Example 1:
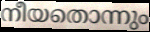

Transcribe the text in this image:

നീയതൊന്നും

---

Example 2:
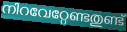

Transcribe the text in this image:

നിറവേറ്റേണ്ടതുണ്ട്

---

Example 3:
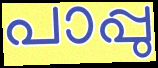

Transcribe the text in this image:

പാപ്പു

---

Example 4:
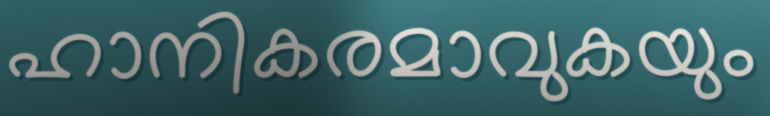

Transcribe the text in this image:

ഹാനികരമാവുകയും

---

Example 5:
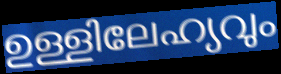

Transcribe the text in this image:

ഉള്ളിലേഹ്യവും